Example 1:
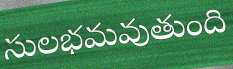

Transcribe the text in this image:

సులభమవుతుంది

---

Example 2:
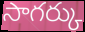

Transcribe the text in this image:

సాగర్కు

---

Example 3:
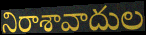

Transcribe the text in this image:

నిరాశావాదుల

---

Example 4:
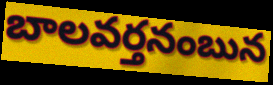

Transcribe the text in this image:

బాలవర్తనంబున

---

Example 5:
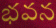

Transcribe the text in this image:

భవన